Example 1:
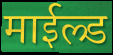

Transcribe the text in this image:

माईल्ड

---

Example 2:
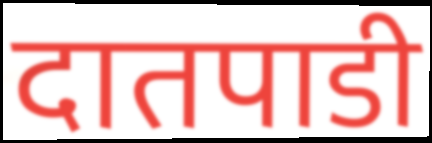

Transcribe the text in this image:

दातपाडी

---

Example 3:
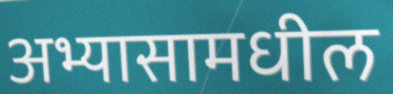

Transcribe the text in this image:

अभ्यासामधील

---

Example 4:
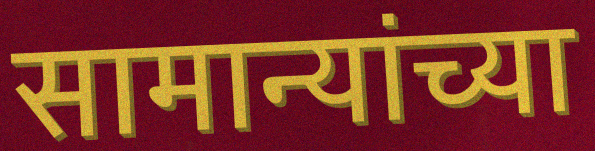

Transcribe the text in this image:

सामान्यांच्या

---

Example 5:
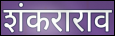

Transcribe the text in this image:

शंकराराव